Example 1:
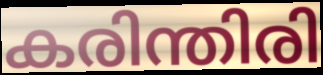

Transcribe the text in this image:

കരിന്തിരി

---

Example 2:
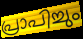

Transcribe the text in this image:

പ്രാപിച്ചും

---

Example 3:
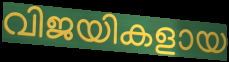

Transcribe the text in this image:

വിജയികളായ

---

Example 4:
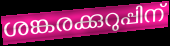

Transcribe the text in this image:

ശങ്കരക്കുറുപ്പിന്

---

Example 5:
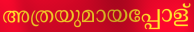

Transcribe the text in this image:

അത്രയുമായപ്പോള്